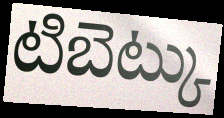
టిబెట్కు